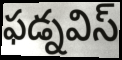
ఫడ్నవిస్